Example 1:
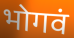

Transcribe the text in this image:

भोगवं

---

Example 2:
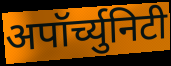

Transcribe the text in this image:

अपॉर्च्युनिटी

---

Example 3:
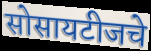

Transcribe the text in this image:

सोसायटीजचे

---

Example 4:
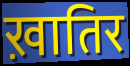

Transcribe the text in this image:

ख़ातिर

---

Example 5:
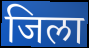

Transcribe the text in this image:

जिला